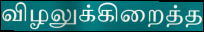
விழலுக்கிறைத்த